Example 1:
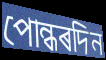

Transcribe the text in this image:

পোন্ধৰদিন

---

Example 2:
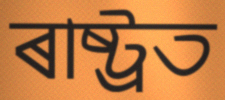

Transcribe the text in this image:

ৰাষ্ট্ৰত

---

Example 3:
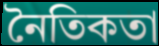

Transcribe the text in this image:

নৈতিকতা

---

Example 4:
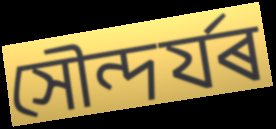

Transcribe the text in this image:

সৌন্দৰ্যৰ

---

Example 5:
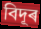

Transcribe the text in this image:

বিদূৰ